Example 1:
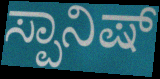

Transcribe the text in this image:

ಸ್ಪಾನಿಷ್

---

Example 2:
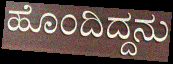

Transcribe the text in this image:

ಹೊಂದಿದ್ದನು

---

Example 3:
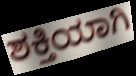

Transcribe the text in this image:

ಶಕ್ತಿಯಾಗಿ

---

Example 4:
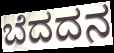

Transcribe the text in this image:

ಬೆದದನ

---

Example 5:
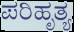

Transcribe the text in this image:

ಪರಿಹೃತ್ಯ